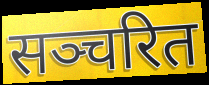
सञ्चरित